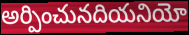
అర్పించునదియనియో